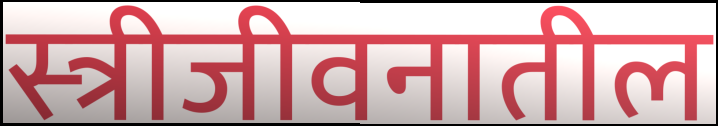
स्त्रीजीवनातील